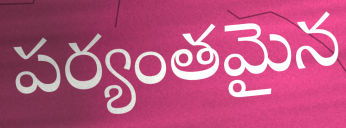
పర్యంతమైన